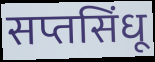
सप्तसिंधू